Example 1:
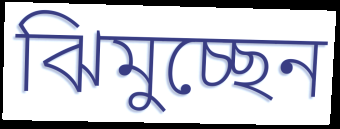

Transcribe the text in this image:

ঝিমুচ্ছেন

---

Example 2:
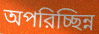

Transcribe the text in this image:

অপরিচ্ছিন্ন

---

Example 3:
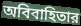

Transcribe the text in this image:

অবিবাহিতার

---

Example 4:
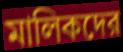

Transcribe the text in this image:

মালিকদের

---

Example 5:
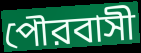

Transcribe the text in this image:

পৌরবাসী